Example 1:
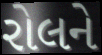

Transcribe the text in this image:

રોલને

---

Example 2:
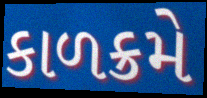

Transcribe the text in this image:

કાળક્રમે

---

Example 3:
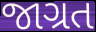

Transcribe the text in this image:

જાગ્રત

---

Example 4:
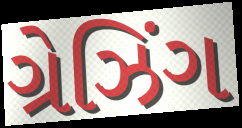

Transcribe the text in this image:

ગ્રેઝિંગ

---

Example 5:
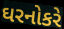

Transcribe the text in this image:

ઘરનોકરે